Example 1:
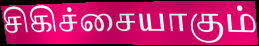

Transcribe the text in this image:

சிகிச்சையாகும்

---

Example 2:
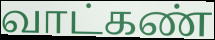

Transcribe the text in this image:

வாட்கண்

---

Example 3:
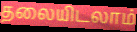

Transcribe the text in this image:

தலையிடலாம்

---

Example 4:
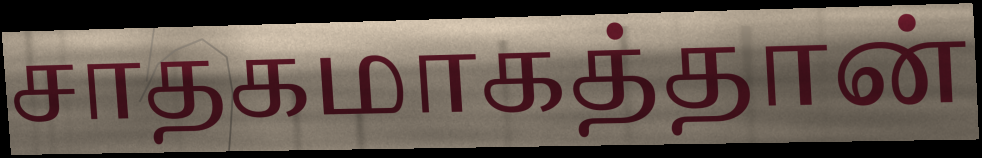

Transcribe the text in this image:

சாதகமாகத்தான்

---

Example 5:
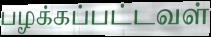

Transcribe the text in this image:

பழக்கப்பட்டவள்